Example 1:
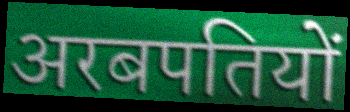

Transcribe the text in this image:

अरबपतियों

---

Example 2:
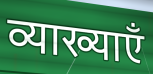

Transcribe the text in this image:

व्याख्याएँ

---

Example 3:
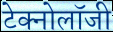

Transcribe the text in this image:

टेक्नोलॉजी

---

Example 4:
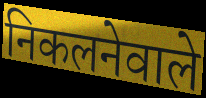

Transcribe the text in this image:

निकलनेवाले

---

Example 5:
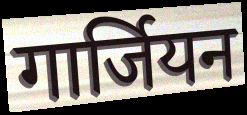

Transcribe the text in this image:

गार्जियन